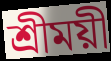
শ্রীময়ী